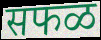
सफळ